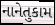
નાનેતુકામ